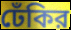
ঢেঁকির